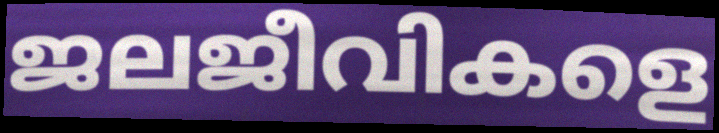
ജലജീവികളെ